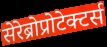
सेरेब्रोप्रोटेक्टर्स